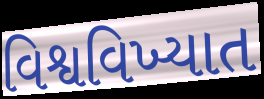
વિશ્વવિખ્યાત